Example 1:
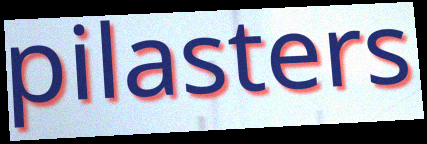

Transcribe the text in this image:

pilasters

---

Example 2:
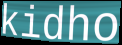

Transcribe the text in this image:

kidho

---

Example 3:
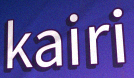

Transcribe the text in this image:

kairi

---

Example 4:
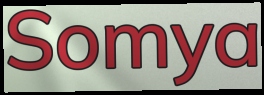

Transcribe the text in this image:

Somya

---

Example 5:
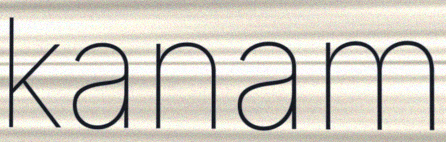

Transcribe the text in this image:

kanam